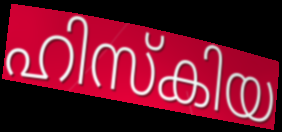
ഹിസ്കിയ